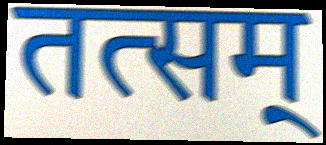
तत्सम्